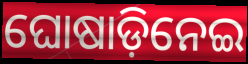
ଘୋଷାଡ଼ିନେଇ